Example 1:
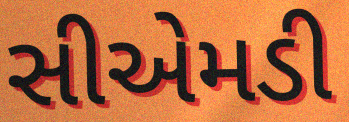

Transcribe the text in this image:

સીએમડી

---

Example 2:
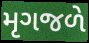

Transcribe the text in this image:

મૃગજળે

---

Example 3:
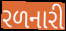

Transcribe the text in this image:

રળનારી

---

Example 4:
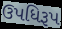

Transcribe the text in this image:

ઉપધિરૂપ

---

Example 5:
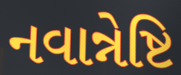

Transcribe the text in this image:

નવાન્નેષ્ટિ